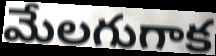
మేలగుగాక